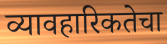
व्यावहारिकतेचा